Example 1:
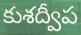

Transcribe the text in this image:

కుశద్వీప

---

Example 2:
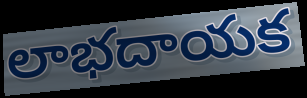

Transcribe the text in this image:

లాభదాయక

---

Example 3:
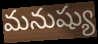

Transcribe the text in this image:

మనుష్యు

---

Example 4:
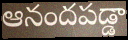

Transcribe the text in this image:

ఆనందపడ్డా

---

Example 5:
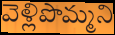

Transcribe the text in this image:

వెళ్లిపొమ్మని